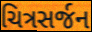
ચિત્રસર્જન